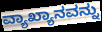
ವ್ಯಾಖ್ಯಾನವನ್ನು